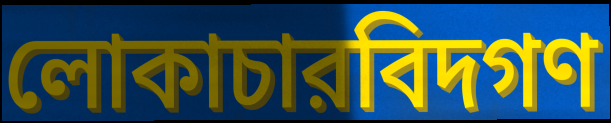
লোকাচারবিদগণ